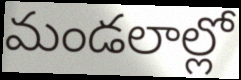
మండలాల్లో